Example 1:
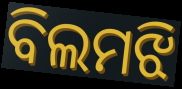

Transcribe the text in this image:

ବିଲମଝି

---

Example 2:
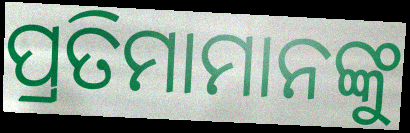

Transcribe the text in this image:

ପ୍ରତିମାମାନଙ୍କୁ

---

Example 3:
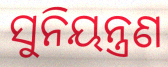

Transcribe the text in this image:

ସୁନିୟନ୍ତ୍ରଣ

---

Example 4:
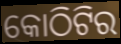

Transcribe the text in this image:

କୋଠିଟିର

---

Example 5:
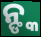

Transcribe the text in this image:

ନ୍ଙ୍କ